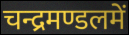
चन्द्रमण्डलमें